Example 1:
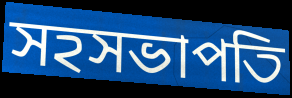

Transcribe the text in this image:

সহসভাপতি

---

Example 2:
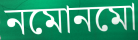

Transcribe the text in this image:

নমোনমো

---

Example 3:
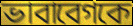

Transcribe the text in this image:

ভাবাবেগকে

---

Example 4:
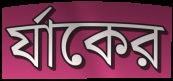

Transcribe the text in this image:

র্যাকের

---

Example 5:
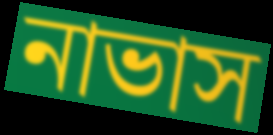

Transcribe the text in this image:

নাভাস